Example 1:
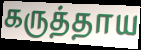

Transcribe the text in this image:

கருத்தாய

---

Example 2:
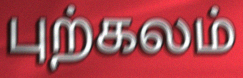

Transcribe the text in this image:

புற்கலம்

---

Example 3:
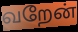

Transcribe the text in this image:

வறேன்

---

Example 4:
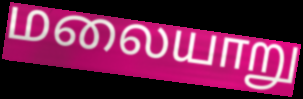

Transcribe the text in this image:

மலையாறு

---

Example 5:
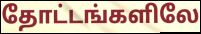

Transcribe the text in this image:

தோட்டங்களிலே